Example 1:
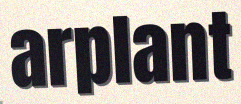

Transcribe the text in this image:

arplant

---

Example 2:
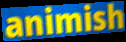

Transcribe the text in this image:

animish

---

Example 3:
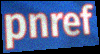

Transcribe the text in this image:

pnref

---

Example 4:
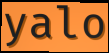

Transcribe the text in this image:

yalo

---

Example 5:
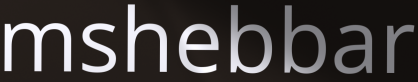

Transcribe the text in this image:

mshebbar